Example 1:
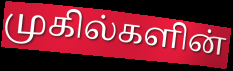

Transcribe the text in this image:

முகில்களின்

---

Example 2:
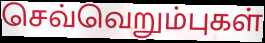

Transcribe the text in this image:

செவ்வெறும்புகள்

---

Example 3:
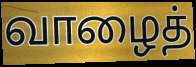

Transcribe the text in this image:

வாழைத்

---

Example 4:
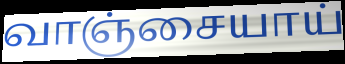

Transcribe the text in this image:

வாஞ்சையாய்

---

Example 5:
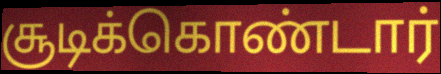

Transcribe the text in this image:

சூடிக்கொண்டார்